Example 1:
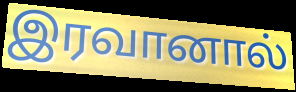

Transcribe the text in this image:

இரவானால்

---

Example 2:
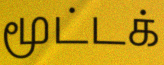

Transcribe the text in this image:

மூட்டக்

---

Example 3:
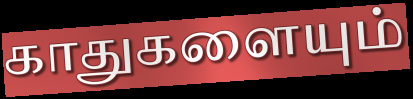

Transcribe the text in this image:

காதுகளையும்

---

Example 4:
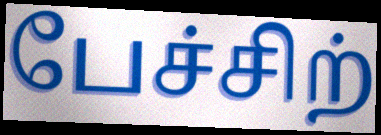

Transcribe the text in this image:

பேச்சிற்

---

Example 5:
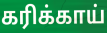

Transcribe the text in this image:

கரிக்காய்